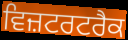
ਵਿਜ਼ਟਰਟਰੈਕ